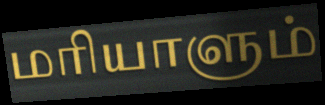
மரியாளும்